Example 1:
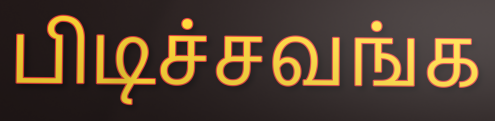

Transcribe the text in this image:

பிடிச்சவங்க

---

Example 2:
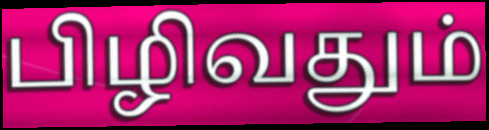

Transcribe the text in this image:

பிழிவதும்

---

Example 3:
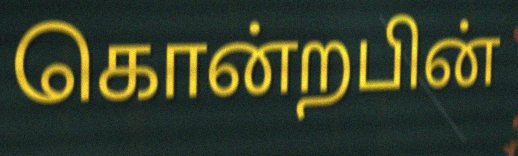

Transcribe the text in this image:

கொன்றபின்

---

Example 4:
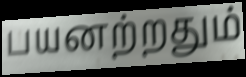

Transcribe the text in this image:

பயனற்றதும்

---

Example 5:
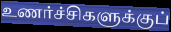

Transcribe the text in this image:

உணர்ச்சிகளுக்குப்